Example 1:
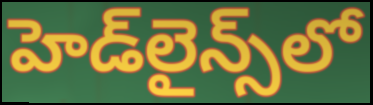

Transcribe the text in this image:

హెడ్‌లైన్స్‌లో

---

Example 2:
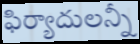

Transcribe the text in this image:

ఫిర్యాదులన్నీ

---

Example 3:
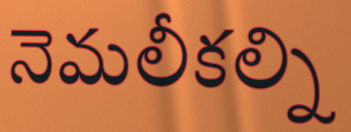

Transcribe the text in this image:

నెమలీకల్ని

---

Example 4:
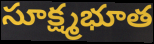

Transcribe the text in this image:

సూక్ష్మభూత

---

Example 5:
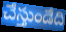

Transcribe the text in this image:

చేస్తుండేది